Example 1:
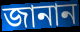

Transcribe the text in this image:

জানান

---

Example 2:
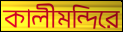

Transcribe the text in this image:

কালীমন্দিরে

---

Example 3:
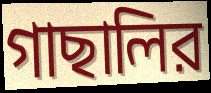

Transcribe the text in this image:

গাছালির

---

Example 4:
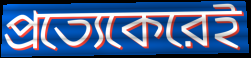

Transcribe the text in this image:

প্রত্যেকেরেই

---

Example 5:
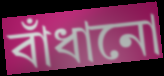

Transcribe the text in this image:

বাঁধানো